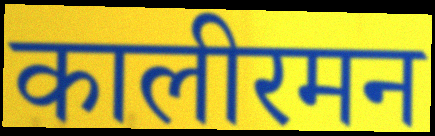
कालीरमन